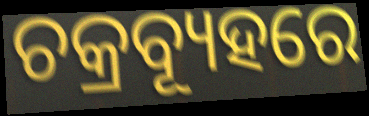
ଚକ୍ରବ୍ୟୂହରେ